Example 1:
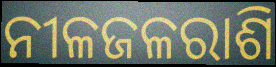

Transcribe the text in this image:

ନୀଳଜଳରାଶି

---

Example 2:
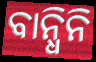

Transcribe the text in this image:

ବାନ୍ଧିନି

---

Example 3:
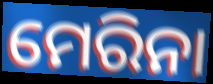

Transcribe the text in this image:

ମେରିନା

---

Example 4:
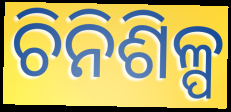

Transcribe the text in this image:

ଚିନିଶିଳ୍ପ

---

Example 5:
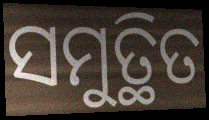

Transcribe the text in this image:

ସମୁତ୍ଥିତ